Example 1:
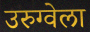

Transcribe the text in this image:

उरुग्वेला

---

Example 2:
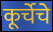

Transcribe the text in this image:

कूर्चेचे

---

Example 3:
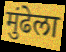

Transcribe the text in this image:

मुंढेला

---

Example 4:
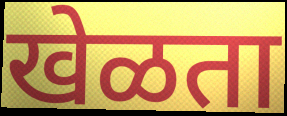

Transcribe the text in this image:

खेळता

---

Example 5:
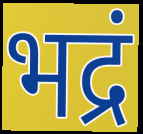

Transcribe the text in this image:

भद्रं